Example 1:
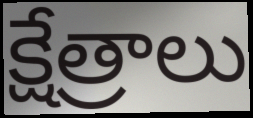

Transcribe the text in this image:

క్షేత్రాలు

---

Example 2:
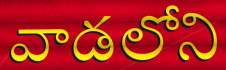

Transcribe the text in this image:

వాడలోని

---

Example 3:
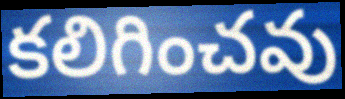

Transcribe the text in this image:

కలిగించవు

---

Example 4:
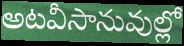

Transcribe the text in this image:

అటవీసానువుల్లో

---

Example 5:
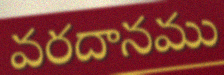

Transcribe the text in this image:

వరదానము